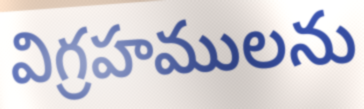
విగ్రహములను